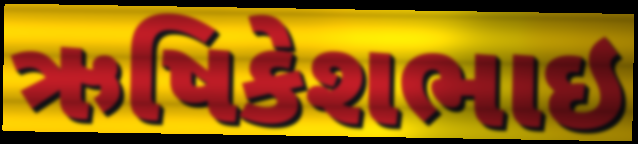
ઋષિકેશભાઇ